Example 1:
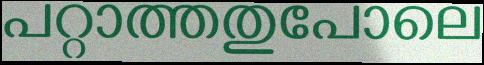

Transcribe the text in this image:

പറ്റാത്തതുപോലെ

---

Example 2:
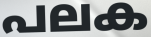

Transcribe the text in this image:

പലക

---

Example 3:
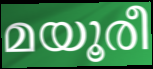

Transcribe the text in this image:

മയൂരീ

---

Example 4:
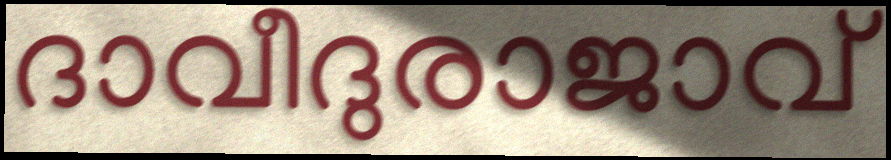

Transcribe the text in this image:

ദാവീദുരാജാവ്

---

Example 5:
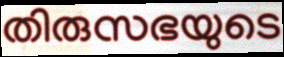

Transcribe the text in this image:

തിരുസഭയുടെ